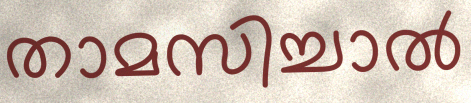
താമസിച്ചാൽ